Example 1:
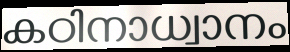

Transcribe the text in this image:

കഠിനാധ്വാനം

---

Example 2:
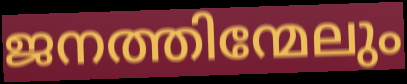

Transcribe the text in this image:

ജനത്തിന്മേലും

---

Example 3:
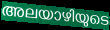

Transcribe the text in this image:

അലയാഴിയുടെ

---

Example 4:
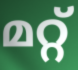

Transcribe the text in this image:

മറ്റ്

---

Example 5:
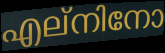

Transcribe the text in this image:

എല്നിനോ